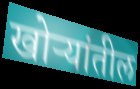
खोऱ्यांतील